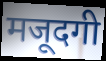
मजूदगी